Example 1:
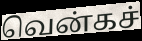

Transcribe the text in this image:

வென்கச்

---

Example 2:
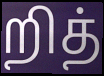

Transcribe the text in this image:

றித்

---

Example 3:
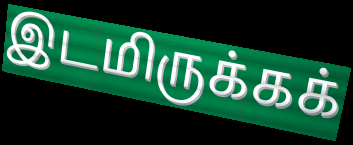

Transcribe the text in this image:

இடமிருக்கக்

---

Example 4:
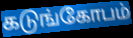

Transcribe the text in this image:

கடுங்கோபம்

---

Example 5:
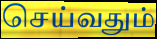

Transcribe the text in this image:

செய்வதும்